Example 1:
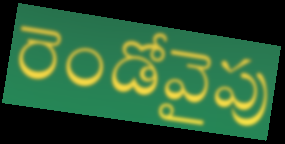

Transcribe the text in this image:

రెండోవైపు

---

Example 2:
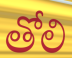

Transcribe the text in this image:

తోలి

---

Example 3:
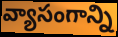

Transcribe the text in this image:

వ్యాసంగాన్ని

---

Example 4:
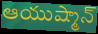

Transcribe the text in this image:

ఆయుష్మాన్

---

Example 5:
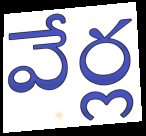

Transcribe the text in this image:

వేర్ల